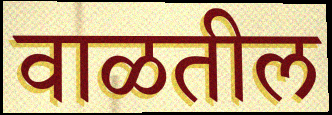
वाळतील